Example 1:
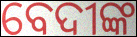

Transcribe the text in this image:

ବେଦୀଙ୍କ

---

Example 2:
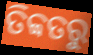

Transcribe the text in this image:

ତିବ୍ବତରୁ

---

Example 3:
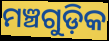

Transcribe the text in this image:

ମଞ୍ଚଗୁଡ଼ିକ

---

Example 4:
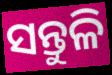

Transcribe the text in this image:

ସନ୍ତୁଳି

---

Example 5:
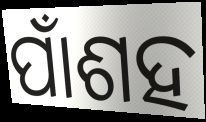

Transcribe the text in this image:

ପାଁଶହ